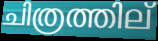
ചിത്രത്തില്